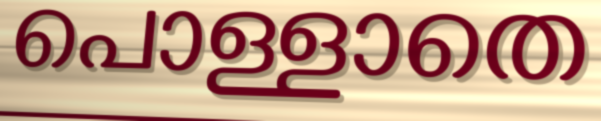
പൊള്ളാതെ